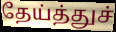
தேய்த்துச்